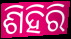
ଶିହିରି